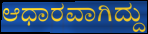
ಆಧಾರವಾಗಿದ್ದು